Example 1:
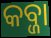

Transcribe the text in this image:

କବ୍ଜା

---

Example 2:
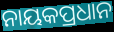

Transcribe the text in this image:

ନାୟକପ୍ରଧାନ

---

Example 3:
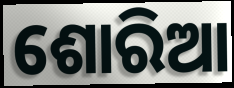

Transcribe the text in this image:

ଶୋରିଆ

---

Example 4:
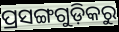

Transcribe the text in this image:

ପ୍ରସଙ୍ଗଗୁଡ଼ିକରୁ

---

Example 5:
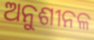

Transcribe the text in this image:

ଅନୁଶୀନଳ